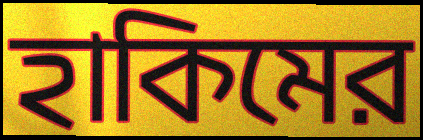
হাকিমের